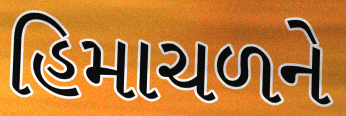
હિમાચળને